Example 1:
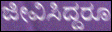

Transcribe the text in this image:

ಜೀವಿಸಿದ್ದರೂ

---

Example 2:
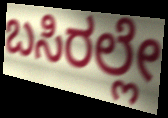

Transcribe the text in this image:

ಬಸಿರಲ್ಲೇ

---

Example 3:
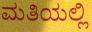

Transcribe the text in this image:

ಮತಿಯಲ್ಲಿ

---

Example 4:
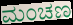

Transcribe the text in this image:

ಮಂಚಣ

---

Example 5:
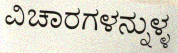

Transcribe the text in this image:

ವಿಚಾರಗಳನ್ನುಳ್ಳ